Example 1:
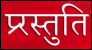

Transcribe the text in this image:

प्र्रस्तुति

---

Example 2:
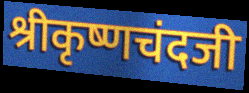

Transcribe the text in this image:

श्रीकृष्णचंदजी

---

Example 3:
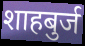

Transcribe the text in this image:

शाहबुर्ज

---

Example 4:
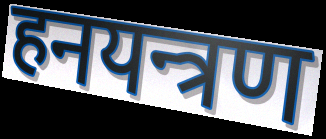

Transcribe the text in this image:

हनयन्त्रण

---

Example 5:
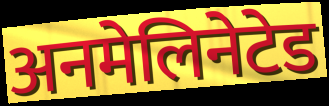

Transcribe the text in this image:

अनमेलिनेटेड